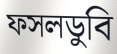
ফসলডুবি